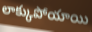
లాక్కుపోయాయి